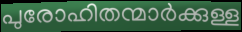
പുരോഹിതന്മാർക്കുള്ള